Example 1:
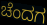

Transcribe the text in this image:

ಚೆಂದಗ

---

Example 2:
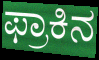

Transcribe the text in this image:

ಫ್ರಾಕಿನ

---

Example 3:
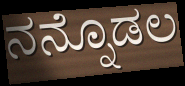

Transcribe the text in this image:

ನನ್ನೊಡಲ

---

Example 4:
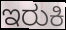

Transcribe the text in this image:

ಇರುಕಿ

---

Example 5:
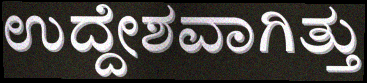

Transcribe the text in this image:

ಉದ್ದೇಶವಾಗಿತ್ತು